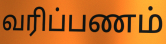
வரிப்பணம்